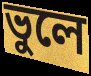
ভুলে